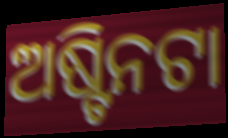
ଅଷ୍ଟିନଟା